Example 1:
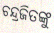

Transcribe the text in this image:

ଚନ୍ଦ୍ରଜିତଙ୍କୁ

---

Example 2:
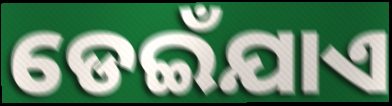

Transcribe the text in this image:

ଡେଇଁଯାଏ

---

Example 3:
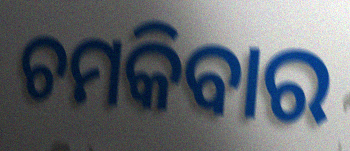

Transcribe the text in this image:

ଚମକିବାର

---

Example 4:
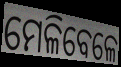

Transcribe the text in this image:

ମେଳିବେଳେ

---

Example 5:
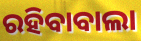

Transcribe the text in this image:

ରହିବାବାଲା